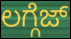
ಲಗ್ಗೆಜ್